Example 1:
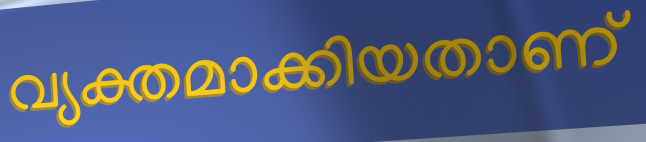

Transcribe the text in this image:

വ്യക്തമാക്കിയതാണ്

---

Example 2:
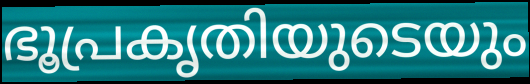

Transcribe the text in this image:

ഭൂപ്രകൃതിയുടെയും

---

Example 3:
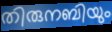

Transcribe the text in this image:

തിരുനബിയും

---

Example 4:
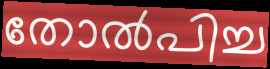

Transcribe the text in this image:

തോൽപിച്ച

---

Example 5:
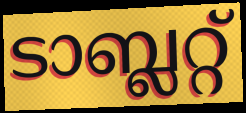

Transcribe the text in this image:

ടാബ്ലറ്റ്